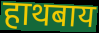
हाथबाय